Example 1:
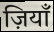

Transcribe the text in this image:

ज़ियाँ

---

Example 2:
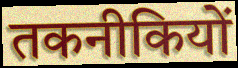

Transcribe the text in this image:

तकनीकियों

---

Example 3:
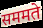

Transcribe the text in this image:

सममते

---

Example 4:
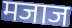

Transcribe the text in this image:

मजाज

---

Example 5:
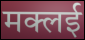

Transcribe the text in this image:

मक्लई